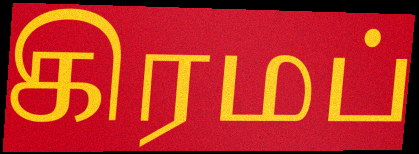
கிரமப்